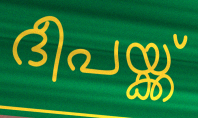
ദീപയ്ക്ക്